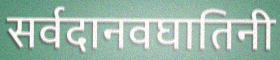
सर्वदानवघातिनी